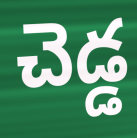
చెడ్డ